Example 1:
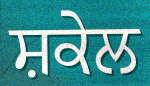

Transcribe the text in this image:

ਸ਼ਕੇਲ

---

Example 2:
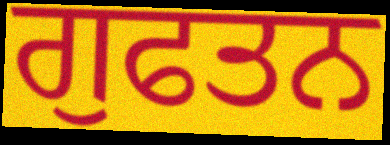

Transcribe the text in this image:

ਗੁਫਤਨ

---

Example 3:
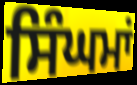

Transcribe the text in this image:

ਸਿੰਘਮਾਂ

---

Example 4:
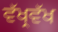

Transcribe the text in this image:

ਵੱਖ੍ਰਵੱਖ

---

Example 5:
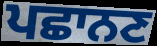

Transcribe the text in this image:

ਪਛਾਨਣ